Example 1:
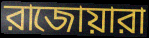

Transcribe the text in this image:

রাজোয়ারা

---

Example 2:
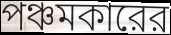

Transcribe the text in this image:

পঞ্চমকারের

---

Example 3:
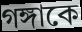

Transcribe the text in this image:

গঙ্গাকে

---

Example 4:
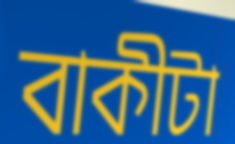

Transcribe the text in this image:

বাকীটা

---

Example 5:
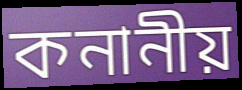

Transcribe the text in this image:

কনানীয়